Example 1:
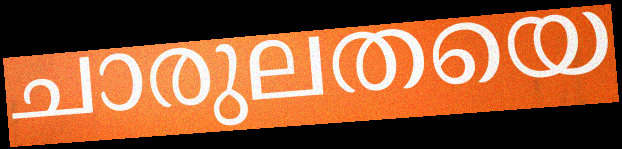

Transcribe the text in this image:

ചാരുലതയെ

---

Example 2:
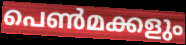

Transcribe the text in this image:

പെൺമക്കളും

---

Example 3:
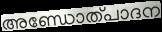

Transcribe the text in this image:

അണ്ഡോത്പാദന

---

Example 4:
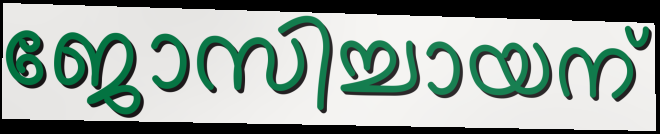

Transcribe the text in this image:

ജോസിച്ചായന്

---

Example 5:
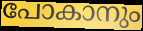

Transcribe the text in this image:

പോകാനും